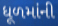
ધૂળમાંની